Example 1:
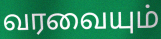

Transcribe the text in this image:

வரவையும்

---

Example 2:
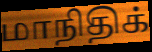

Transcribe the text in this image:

மாநிதிக்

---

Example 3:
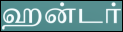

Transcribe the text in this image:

ஹன்டர்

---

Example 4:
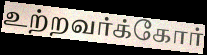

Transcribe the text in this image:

உற்றவர்க்கோர்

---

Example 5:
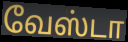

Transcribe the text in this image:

வேஸ்டா